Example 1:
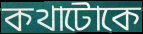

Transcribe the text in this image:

কথাটোকে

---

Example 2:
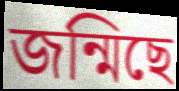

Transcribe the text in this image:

জন্মিছে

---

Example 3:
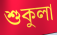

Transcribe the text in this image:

শুকুলা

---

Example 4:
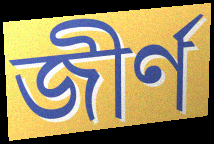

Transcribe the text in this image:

জীৰ্ণ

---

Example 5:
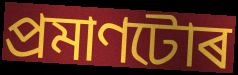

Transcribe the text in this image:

প্ৰমাণটোৰ